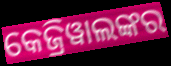
କେଜ୍ରିୱାଲଙ୍କର